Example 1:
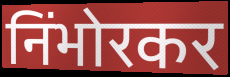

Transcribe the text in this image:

निंभोरकर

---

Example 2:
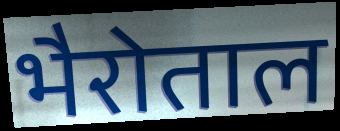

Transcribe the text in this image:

भैरोताल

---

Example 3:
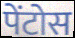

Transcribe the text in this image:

पेंटोस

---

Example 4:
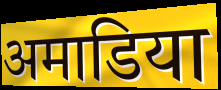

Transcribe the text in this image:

अमाडिया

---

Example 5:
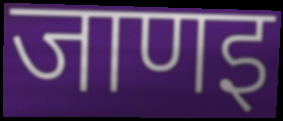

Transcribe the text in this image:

जाणइ